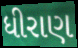
ધીરાણ